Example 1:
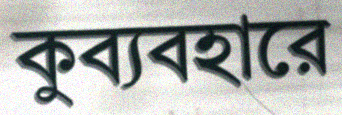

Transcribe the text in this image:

কুব্যবহারে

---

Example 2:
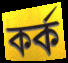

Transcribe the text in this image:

কর্ক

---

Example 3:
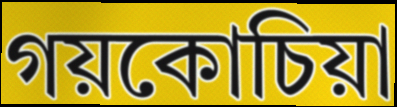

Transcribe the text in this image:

গয়কোচিয়া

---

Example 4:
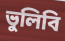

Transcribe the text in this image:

ভুলিবি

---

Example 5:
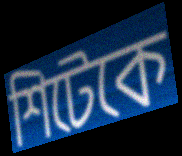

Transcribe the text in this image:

শিটেকে